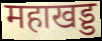
महाखड्ड